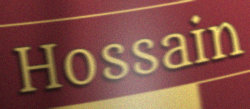
Hossain